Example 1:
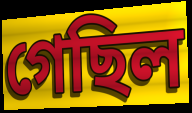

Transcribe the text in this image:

গেছিল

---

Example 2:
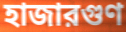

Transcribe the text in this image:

হাজারগুণ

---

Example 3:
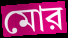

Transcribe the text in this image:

মোর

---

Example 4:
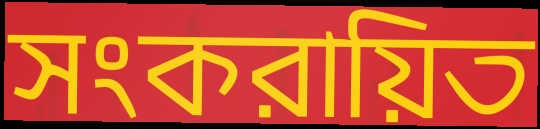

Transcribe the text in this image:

সংকরায়িত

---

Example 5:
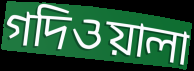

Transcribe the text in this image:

গদিওয়ালা